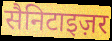
सैनिटाइज़र